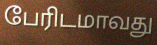
பேரிடமாவது